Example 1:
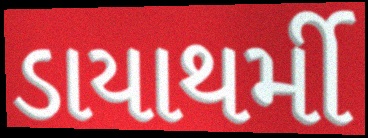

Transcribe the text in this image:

ડાયાથર્મી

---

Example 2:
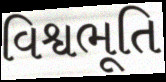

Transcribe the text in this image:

વિશ્વભૂતિ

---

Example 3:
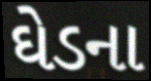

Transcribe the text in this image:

ઘેડના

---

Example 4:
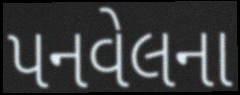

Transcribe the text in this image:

પનવેલના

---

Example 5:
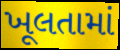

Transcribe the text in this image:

ખૂલતામાં